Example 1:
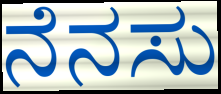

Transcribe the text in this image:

ನೆನಸು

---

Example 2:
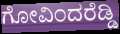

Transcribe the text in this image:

ಗೋವಿಂದರೆಡ್ಡಿ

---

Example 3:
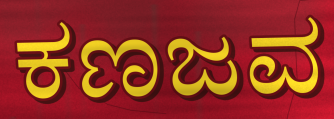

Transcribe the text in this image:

ಕಣಜವ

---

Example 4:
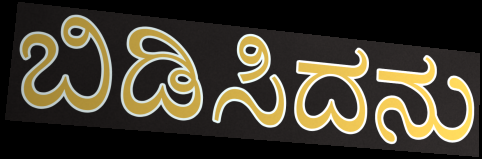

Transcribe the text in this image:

ಬಿಡಿಸಿದನು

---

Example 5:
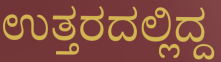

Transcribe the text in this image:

ಉತ್ತರದಲ್ಲಿದ್ದ